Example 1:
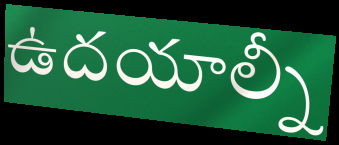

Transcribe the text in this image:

ఉదయాల్నీ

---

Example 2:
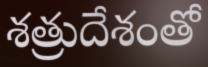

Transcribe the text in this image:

శత్రుదేశంతో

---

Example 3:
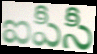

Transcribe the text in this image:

ఐపీసీ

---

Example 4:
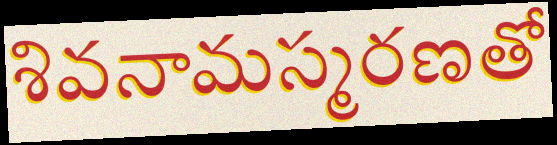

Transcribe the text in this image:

శివనామస్మరణతో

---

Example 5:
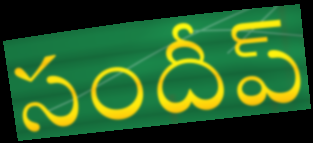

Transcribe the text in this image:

సందీప్